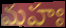
మహః